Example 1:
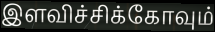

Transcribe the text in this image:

இளவிச்சிக்கோவும்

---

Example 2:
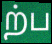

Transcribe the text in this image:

ற்ப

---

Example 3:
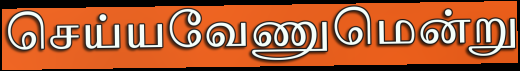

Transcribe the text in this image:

செய்யவேணுமென்று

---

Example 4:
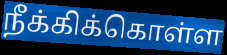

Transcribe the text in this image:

நீக்கிக்கொள்ள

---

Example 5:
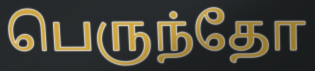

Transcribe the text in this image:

பெருந்தோ